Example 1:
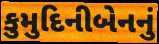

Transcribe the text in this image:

કુમુદિનીબેનનું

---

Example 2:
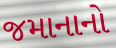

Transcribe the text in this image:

જમાનાનો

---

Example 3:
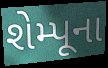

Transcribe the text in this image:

શેમ્પૂના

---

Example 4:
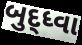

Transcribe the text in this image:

બુદ્ધ્વા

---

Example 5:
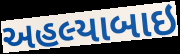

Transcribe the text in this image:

અહલ્યાબાઇ